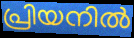
പ്രിയനിൽ